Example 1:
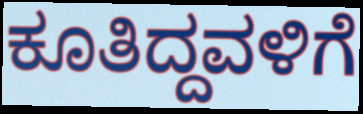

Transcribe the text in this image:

ಕೂತಿದ್ದವಳಿಗೆ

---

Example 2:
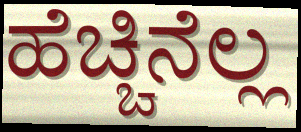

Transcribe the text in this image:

ಹೆಚ್ಚಿನೆಲ್ಲ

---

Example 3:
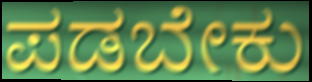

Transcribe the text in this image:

ಪಡಬೇಕು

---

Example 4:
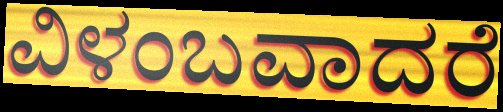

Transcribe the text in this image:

ವಿಳಂಬವಾದರೆ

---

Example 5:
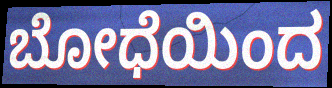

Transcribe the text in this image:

ಬೋಧೆಯಿಂದ